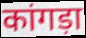
कांगड़ा